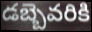
డబ్బెవరికి